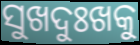
ସୁଖଦୁଃଖକୁ